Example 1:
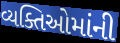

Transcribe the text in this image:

વ્યક્તિઓમાંની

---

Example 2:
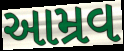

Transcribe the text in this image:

આમ્રવ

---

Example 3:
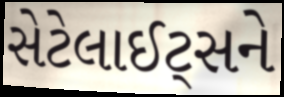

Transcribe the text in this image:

સેટેલાઈટ્સને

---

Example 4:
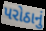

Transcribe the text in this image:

પરોઠાનું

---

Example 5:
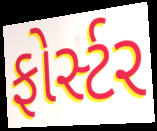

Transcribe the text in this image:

ફોર્સ્ટર